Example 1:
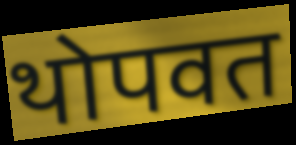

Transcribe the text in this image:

थोपवत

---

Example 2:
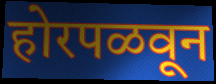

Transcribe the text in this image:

होरपळवून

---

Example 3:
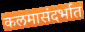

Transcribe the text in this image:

कलमासंदर्भात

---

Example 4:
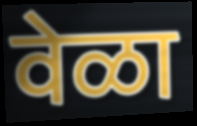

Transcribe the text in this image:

वेळा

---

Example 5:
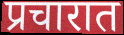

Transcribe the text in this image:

प्रचारात